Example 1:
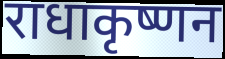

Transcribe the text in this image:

राधाकृष्णन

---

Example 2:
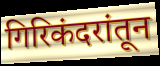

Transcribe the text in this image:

गिरिकंदरांतून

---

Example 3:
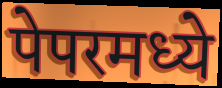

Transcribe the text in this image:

पेपरमध्ये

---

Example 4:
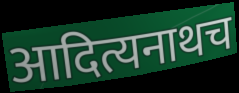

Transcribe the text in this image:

आदित्यनाथच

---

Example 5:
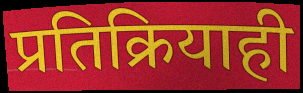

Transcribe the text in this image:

प्रतिक्रियाही